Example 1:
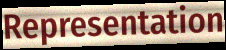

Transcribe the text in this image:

Representation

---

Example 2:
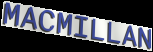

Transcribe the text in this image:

MACMILLAN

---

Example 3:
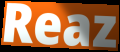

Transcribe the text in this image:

Reaz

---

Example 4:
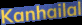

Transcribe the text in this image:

Kanhailal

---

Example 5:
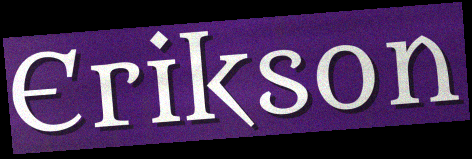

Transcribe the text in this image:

Erikson